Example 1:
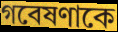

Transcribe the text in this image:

গবেষণাকে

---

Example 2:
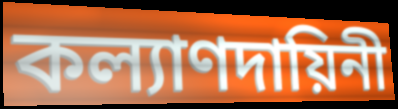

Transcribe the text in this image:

কল্যাণদায়িনী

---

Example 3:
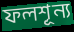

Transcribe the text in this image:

ফলশূন্য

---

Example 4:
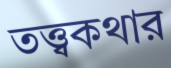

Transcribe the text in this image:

তত্ত্বকথার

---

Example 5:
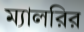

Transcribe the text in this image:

ম্যালরির